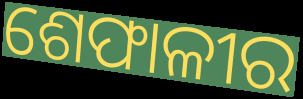
ଶେଫାଳୀର